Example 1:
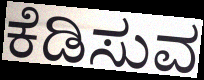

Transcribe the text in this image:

ಕೆಡಿಸುವ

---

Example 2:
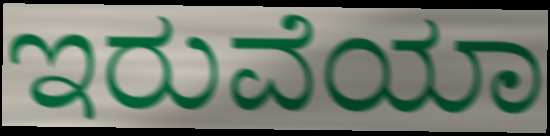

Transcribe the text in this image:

ಇರುವೆಯಾ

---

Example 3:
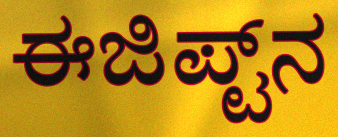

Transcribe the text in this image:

ಈಜಿಪ್ಟ್‌ನ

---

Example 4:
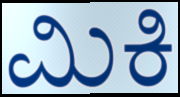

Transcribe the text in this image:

ಮಿಕಿ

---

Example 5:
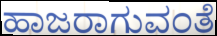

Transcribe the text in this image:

ಹಾಜರಾಗುವಂತೆ